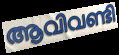
ആവിവണ്ടി